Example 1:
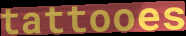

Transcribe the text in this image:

tattooes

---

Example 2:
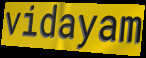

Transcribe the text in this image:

vidayam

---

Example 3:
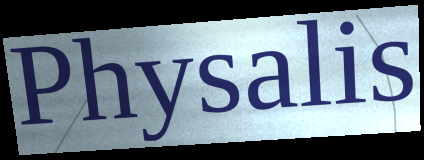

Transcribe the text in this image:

Physalis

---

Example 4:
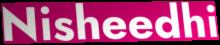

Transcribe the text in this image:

Nisheedhi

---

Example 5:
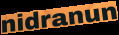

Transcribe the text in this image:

nidranun